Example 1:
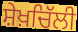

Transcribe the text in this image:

ਸ਼ੇਖ਼ਚਿੱਲੀ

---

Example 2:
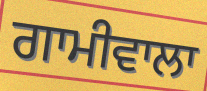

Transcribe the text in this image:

ਗਾਮੀਵਾਲਾ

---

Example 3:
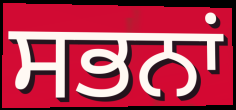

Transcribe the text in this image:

ਸਭਨਾਂ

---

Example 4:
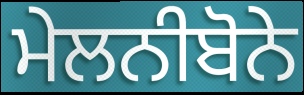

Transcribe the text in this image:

ਮੇਲਨੀਬੋਨੇ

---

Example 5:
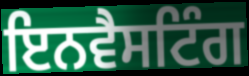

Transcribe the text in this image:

ਇਨਵੈਸਟਿੰਗ